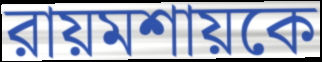
রায়মশায়কে